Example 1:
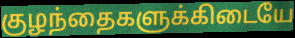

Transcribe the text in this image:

குழந்தைகளுக்கிடையே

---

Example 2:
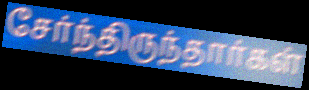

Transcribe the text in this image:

சேர்ந்திருந்தார்கள்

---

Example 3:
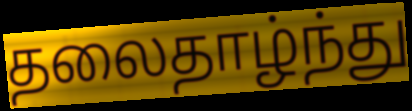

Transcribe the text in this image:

தலைதாழ்ந்து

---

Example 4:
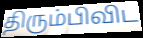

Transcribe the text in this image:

திரும்பிவிட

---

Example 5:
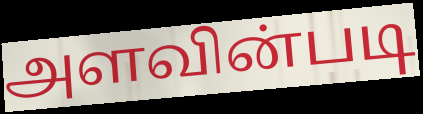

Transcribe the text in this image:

அளவின்படி